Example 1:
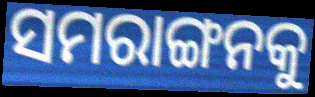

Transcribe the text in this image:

ସମରାଙ୍ଗନକୁ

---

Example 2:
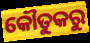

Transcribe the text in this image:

କୌତୁକରୁ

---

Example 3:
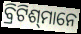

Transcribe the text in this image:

ବ୍ରିଟିଶ୍‍ମାନେ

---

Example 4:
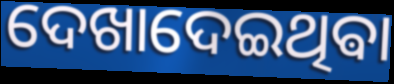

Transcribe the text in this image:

ଦେଖାଦେଇଥିଵା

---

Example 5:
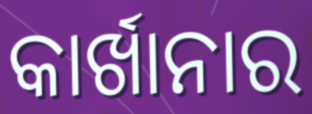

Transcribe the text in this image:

କାର୍ଖାନାର